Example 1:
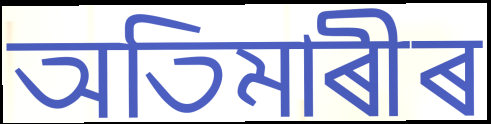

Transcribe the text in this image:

অতিমাৰীৰ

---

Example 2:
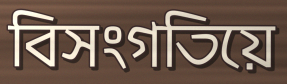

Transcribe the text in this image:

বিসংগতিয়ে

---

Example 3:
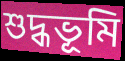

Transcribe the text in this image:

শুদ্ধভূমি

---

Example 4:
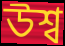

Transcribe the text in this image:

উশ্ব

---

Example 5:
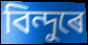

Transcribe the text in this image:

বিন্দুৰে